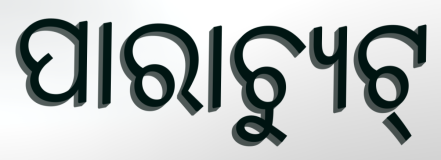
ପାରାଚ୍ୟୁଟ୍